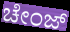
ಚೇಂಜ್